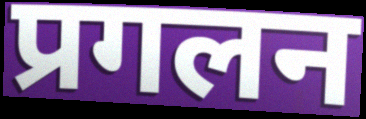
प्रगलन